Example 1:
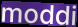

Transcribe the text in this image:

moddi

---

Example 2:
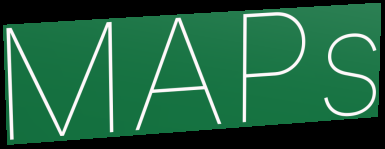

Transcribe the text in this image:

MAPs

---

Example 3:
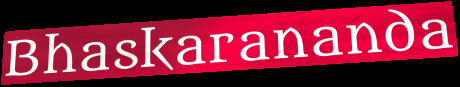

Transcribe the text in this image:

Bhaskarananda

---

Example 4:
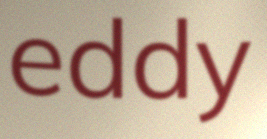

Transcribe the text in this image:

eddy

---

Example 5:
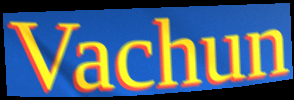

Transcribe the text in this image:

Vachun